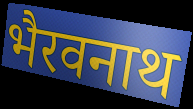
भैरवनाथ